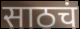
साठचं